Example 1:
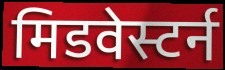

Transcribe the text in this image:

मिडवेस्टर्न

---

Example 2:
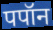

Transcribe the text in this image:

पपॉन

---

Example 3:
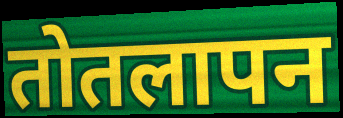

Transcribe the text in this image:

तोतलापन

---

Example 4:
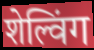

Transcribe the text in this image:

शेल्विंग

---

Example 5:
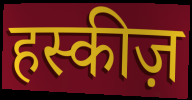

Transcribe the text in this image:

हस्कीज़